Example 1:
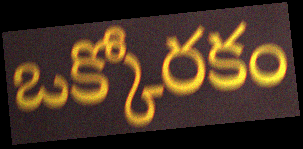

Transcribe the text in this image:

ఒక్కోరకం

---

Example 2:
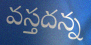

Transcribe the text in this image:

వస్తదన్న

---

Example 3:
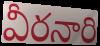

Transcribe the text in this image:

వీరనారి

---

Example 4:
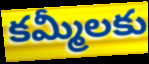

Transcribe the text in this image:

కమ్మీలకు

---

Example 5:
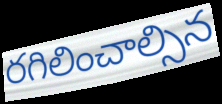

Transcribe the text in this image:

రగిలించాల్సిన